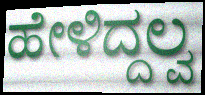
ಹೇಳಿದ್ದಲ್ವ